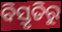
ବିସ୍ତୃତିରୁ